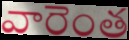
వారెంత